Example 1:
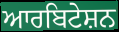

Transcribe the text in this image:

ਆਰਬਿਟੇਸ਼ਨ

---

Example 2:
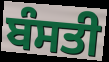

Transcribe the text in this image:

ਬੰਸਤੀ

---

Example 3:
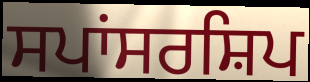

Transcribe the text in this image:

ਸਪਾਂਸਰਸ਼ਿਪ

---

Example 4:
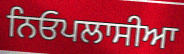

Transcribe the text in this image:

ਨਿਓਪਲਾਸੀਆ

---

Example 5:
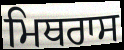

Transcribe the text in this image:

ਮਿਥਰਾਸ